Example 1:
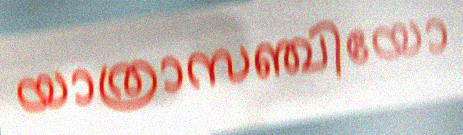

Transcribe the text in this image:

യാത്രാസഞ്ചിയോ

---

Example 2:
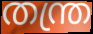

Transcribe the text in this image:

തന്ത്ര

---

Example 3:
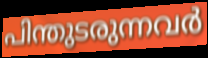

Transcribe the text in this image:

പിന്തുടരുന്നവർ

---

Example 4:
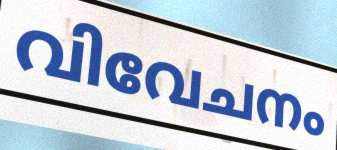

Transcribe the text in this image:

വിവേചനം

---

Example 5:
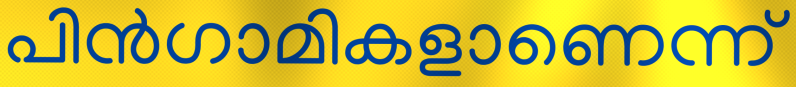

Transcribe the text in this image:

പിൻഗാമികളാണെന്ന്